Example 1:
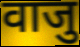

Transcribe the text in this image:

वाजु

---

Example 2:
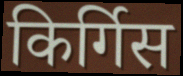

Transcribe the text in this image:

किर्गिस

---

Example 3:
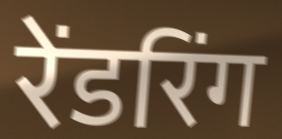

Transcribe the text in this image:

रेंडरिंग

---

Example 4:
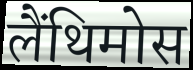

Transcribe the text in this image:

लैंथिमोस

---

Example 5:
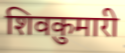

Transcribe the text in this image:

शिवकुमारी